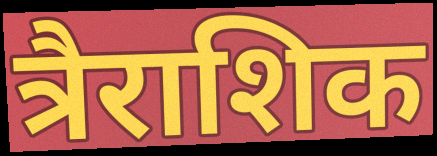
त्रैराशिक